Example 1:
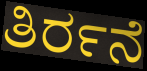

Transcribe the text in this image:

ತಿರ್ರನೆ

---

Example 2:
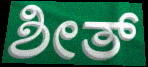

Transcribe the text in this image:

ಶೀತ್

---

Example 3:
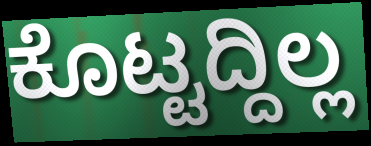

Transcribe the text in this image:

ಕೊಟ್ಟದ್ದಿಲ್ಲ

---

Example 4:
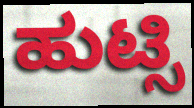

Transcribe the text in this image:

ಹುಟ್ಸಿ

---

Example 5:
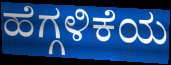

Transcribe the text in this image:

ಹೆಗ್ಗಳಿಕೆಯ